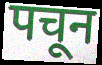
पचून